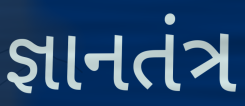
જ્ઞાનતંત્ર